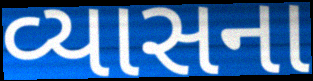
વ્યાસના